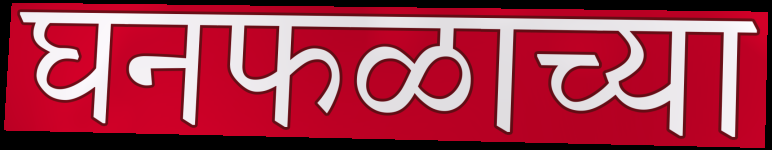
घनफळाच्या